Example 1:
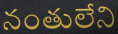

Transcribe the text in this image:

నంతులేని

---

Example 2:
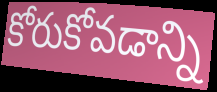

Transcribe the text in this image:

కోరుకోవడాన్ని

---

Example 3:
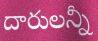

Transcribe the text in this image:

దారులన్నీ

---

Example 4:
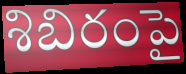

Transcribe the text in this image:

శిబిరంపై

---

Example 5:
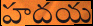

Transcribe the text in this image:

హదయ